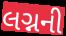
લગ્નની